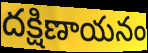
దక్షిణాయనం